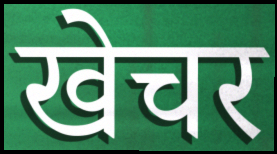
खेचर